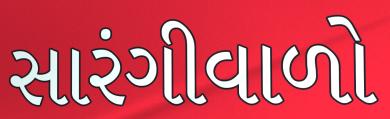
સારંગીવાળો